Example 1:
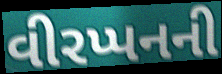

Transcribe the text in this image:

વીરપ્પનની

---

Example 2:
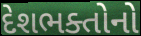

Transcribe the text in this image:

દેશભક્તોનો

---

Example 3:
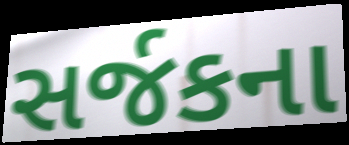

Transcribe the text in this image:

સર્જકના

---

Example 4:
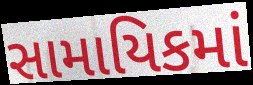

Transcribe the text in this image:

સામાયિકમાં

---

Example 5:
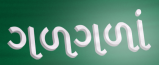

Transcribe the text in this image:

ગળગળાં